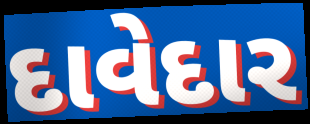
દાવેદાર